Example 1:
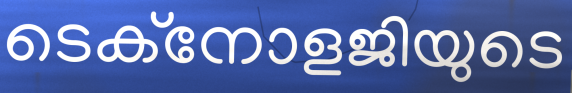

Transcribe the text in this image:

ടെക്നോളജിയുടെ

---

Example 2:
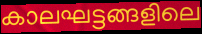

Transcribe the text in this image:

കാലഘട്ടങ്ങളിലെ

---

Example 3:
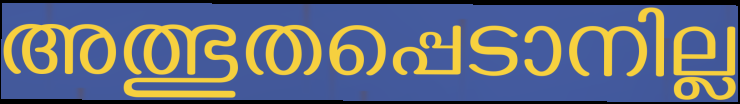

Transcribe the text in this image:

അത്ഭുതപ്പെടാനില്ല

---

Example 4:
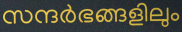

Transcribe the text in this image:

സന്ദർഭങ്ങളിലും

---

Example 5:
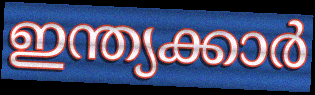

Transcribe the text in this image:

ഇന്ത്യക്കാർ